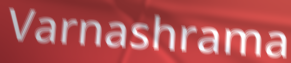
Varnashrama